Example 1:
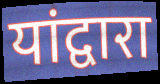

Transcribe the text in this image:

यांद्वारा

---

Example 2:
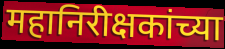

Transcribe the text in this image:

महानिरीक्षकांच्या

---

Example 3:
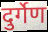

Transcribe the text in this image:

दुर्गेण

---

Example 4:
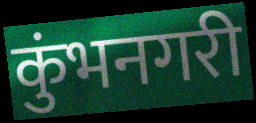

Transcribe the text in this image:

कुंभनगरी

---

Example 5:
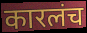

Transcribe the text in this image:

कारलंच